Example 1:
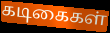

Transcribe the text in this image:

கடிகைகள்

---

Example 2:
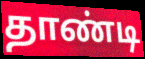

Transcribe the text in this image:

தாண்டி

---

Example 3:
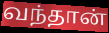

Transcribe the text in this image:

வந்தான்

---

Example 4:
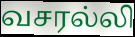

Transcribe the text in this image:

வசரல்லி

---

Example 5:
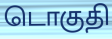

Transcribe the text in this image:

டொகுதி